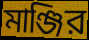
মাঞ্জির